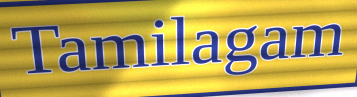
Tamilagam